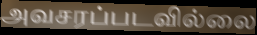
அவசரப்படவில்லை